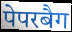
पेपरबैग